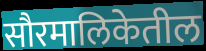
सौरमालिकेतील